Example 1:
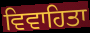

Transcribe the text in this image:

ਵਿਵਾਹਿਤਾ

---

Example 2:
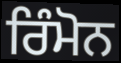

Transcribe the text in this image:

ਰਿੰਮੋਨ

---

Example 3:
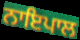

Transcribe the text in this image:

ਨਾਇਪਾਲ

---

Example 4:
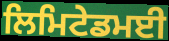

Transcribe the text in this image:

ਲਿਮਿਟੇਡਮਈ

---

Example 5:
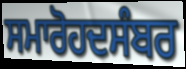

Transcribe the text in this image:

ਸਮਾਰੋਹਦਸੰਬਰ